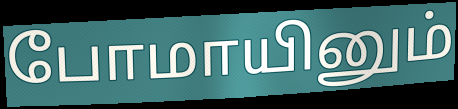
போமாயினும்